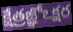
క్షేత్రజ్ఞోఽక్షర